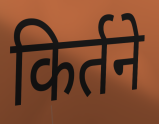
किर्तने